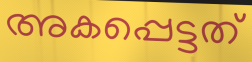
അകപ്പെട്ടത്